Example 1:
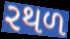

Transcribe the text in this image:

રથળ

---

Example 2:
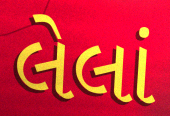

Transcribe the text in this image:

લેલાં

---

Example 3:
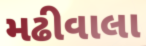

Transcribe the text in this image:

મઢીવાલા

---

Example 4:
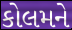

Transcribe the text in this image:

કોલમને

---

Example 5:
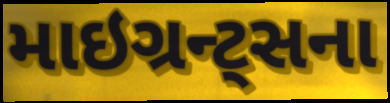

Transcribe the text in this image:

માઇગ્રન્ટ્સના